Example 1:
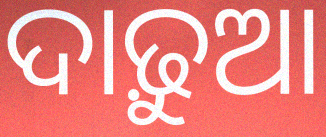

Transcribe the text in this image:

ଦାଢ଼ୁଆ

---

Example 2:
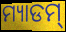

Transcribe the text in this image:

ମ୍ୟାଡମ୍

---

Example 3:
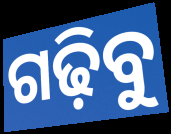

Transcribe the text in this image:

ଗଢ଼ିବୁ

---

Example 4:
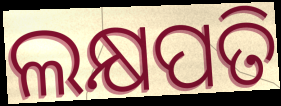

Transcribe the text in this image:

ଲକ୍ଷପତି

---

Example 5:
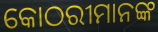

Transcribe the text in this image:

କୋଠରୀମାନଙ୍କ